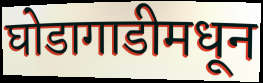
घोडागाडीमधून